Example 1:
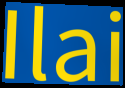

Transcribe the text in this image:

Ilai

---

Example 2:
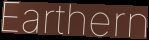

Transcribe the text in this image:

Earthern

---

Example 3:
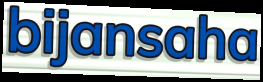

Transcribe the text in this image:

bijansaha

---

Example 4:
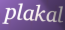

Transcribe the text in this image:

plakal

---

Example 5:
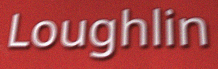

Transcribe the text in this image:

Loughlin